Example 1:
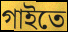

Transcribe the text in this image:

গাইতে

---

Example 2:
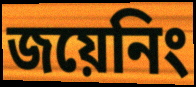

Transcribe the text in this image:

জয়েনিং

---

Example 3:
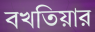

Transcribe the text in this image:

বখতিয়ার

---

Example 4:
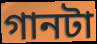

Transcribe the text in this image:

গানটা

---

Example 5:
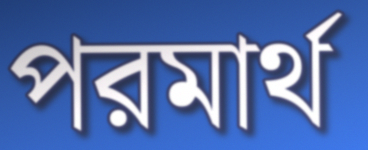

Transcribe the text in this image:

পরমার্থ